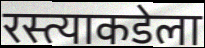
रस्त्याकडेला